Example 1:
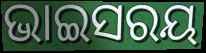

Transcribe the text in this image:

ଭାଇସରୟ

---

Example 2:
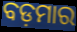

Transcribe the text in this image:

ବଡ଼ମାର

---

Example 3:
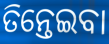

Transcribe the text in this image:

ତିନ୍ତେଇବା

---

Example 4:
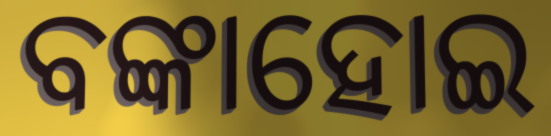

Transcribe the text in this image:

ବଙ୍କାହୋଇ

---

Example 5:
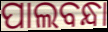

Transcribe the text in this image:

ପାଲବନ୍ଧା